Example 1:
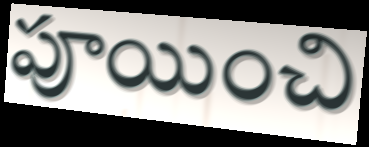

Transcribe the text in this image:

పూయించి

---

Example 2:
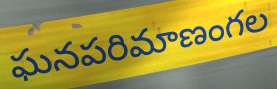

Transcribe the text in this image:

ఘనపరిమాణంగల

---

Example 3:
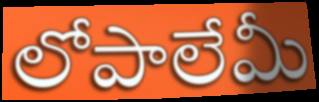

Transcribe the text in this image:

లోపాలేమీ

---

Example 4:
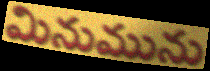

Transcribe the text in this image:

మినుమును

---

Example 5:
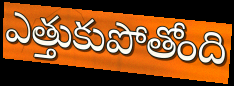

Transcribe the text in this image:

ఎత్తుకుపోతోంది